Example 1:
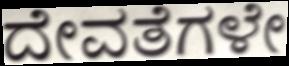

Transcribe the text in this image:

ದೇವತೆಗಳೇ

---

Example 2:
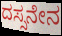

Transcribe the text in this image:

ದಸ್ಸನೇನ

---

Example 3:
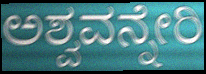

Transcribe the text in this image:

ಅಶ್ವವನ್ನೇರಿ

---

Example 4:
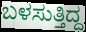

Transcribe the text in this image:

ಬಳಸುತ್ತಿದ್ದ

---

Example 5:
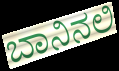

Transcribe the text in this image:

ಬಾನಿನಲಿ